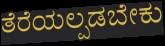
ತೆರೆಯಲ್ಪಡಬೇಕು